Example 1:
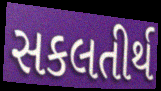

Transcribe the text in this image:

સકલતીર્થ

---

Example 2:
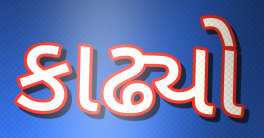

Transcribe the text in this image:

કાઢ્યો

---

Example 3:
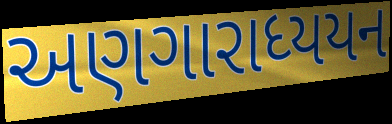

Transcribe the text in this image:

અણગારાધ્યયન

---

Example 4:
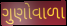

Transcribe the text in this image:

ગુણોવાળા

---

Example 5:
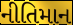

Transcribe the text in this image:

નીતિમાન